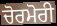
ਚੋਰਮੋਰੀ